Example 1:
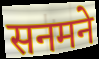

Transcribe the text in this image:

सनमने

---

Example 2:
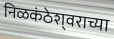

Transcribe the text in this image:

निळकंठेश्वराच्या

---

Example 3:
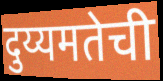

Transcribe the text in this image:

दुय्यमतेची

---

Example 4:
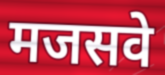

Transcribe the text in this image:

मजसवे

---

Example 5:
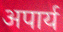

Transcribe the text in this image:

अपार्य